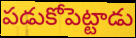
పడుకోపెట్టాడు